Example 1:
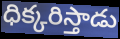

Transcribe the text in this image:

ధిక్కరిస్తాడు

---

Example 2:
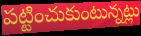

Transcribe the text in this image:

పట్టించుకుంటున్నట్లు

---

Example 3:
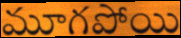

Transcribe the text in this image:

మూగపోయి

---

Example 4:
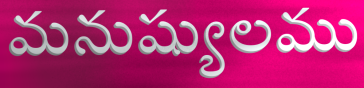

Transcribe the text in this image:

మనుష్యులము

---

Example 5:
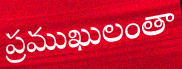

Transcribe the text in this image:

ప్రముఖులంతా